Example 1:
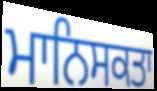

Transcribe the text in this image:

ਮਾਨਿਸਕਤਾ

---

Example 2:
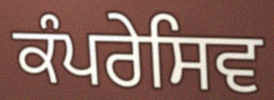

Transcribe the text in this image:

ਕੰਪਰੇਸਿਵ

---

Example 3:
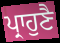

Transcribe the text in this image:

ਪ੍ਰਾਹੁਣੈ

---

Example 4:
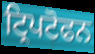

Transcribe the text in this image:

ਟ੍ਰਿਪਟੋਫਨ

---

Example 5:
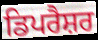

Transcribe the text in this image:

ਡਿਪਰੈਸ਼ਰ